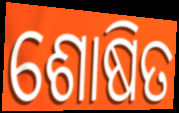
ଶୋଷିତ